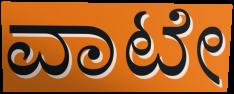
ವಾಟೇ